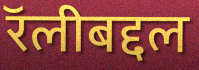
रॅलीबद्दल